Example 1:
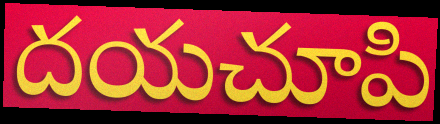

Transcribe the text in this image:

దయచూపి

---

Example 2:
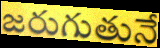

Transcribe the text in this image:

జరుగుతునే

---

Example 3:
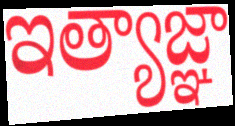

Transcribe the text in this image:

ఇత్యాజ్ఞా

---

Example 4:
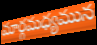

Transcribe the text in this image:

మార్గమధ్యమున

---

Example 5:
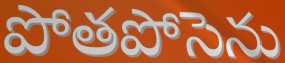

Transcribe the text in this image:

పోతపోసెను